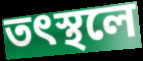
তৎস্থলে